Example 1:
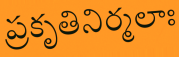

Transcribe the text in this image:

ప్రకృతినిర్మలాః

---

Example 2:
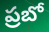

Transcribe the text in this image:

ప్రబో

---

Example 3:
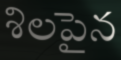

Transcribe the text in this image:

శిలపైన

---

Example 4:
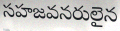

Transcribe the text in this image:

సహజవనరులైన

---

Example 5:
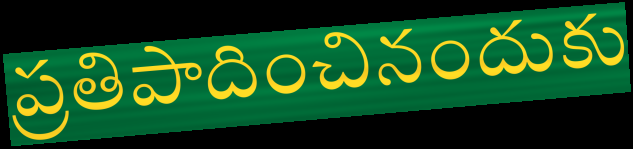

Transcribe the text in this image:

ప్రతిపాదించినందుకు